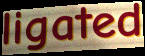
ligated